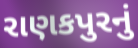
રાણકપુરનું